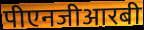
पीएनजीआरबी